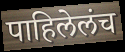
पाहिलेलंच